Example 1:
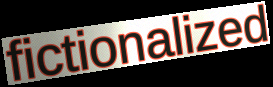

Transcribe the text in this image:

fictionalized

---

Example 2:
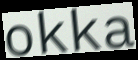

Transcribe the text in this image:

okka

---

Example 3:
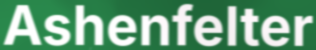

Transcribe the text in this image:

Ashenfelter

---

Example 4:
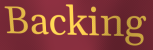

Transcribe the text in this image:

Backing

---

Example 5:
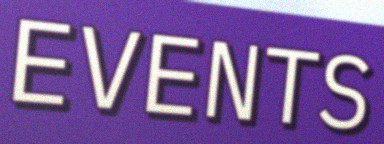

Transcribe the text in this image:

EVENTS